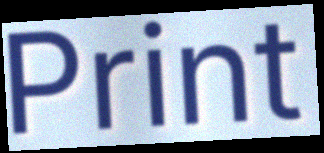
Print